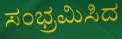
ಸಂಭ್ರಮಿಸಿದ